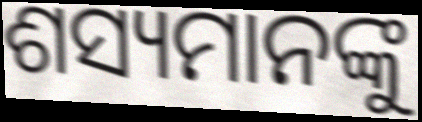
ଶସ୍ୟମାନଙ୍କୁ